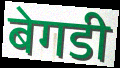
बेगडी